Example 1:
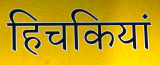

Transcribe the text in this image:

हिचकियां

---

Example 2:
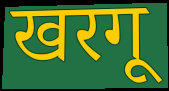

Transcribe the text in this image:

खरगू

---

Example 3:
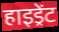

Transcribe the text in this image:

हाइड्रेंट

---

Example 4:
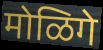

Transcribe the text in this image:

मोळिगे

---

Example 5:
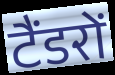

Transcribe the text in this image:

टैंडरों